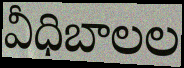
వీధిబాలల